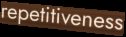
repetitiveness